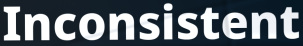
Inconsistent